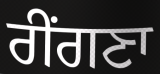
ਰੀਂਗਣਾ